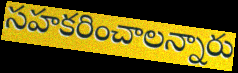
సహకరించాలన్నారు